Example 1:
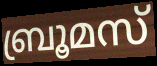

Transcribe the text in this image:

ബ്രൂമസ്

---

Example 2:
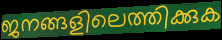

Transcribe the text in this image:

ജനങ്ങളിലെത്തിക്കുക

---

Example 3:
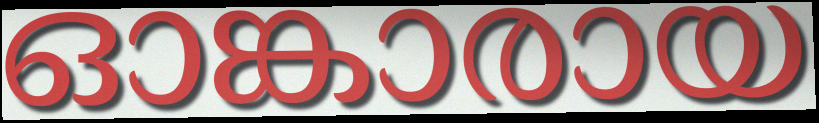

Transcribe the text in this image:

ഓങ്കാരായ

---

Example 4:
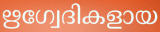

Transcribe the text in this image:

ഋഗ്വേദികളായ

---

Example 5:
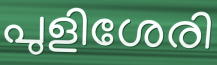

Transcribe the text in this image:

പുളിശേരി